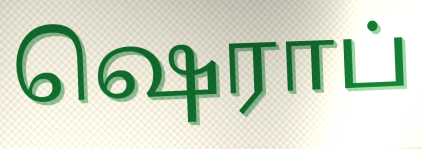
ஷெராப்